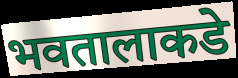
भवतालाकडे